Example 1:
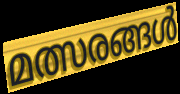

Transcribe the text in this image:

മത്സരങ്ങൾ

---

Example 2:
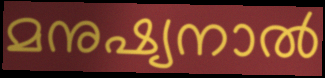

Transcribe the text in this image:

മനുഷ്യനാൽ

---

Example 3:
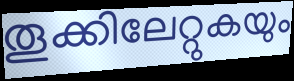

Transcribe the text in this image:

തൂക്കിലേറ്റുകയും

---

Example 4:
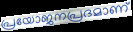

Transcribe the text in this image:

പ്രയോജനപ്രദമാണ്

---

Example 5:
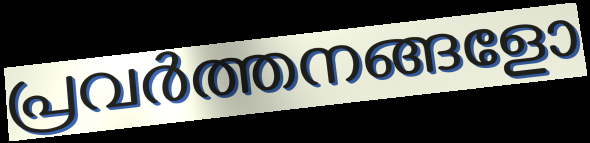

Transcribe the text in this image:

പ്രവർത്തനങ്ങളോ